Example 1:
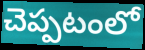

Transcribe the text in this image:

చెప్పటంలో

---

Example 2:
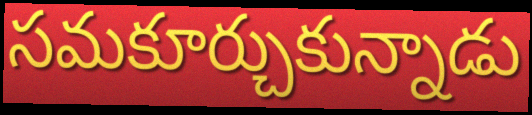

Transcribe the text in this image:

సమకూర్చుకున్నాడు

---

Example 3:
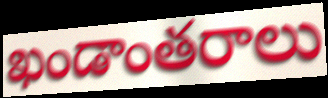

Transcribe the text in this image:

ఖండాంతరాలు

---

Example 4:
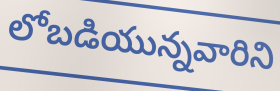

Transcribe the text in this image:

లోబడియున్నవారిని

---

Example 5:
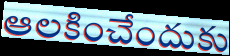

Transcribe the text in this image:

ఆలకించేందుకు